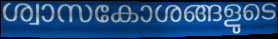
ശ്വാസകോശങ്ങളുടെ